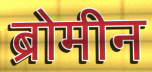
ब्रोमीन